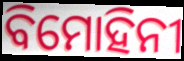
ବିମୋହିନୀ